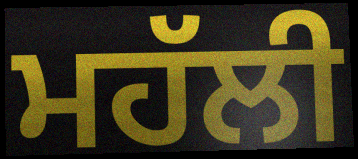
ਮਹੱਲੀ